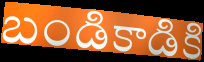
బండికాడికి